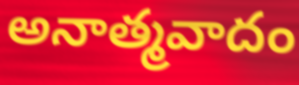
అనాత్మవాదం